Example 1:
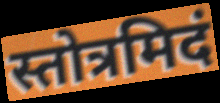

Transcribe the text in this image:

स्तोत्रमिदं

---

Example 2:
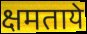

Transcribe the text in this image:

क्षमताये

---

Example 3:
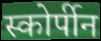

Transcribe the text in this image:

स्कोर्पीन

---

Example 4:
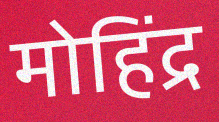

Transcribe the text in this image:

मोहिंद्र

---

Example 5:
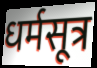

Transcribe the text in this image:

धर्मसूत्र